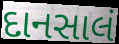
દાનસાલં